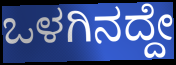
ಒಳಗಿನದ್ದೇ